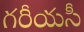
గరీయసీ